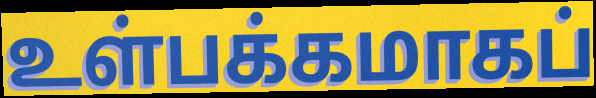
உள்பக்கமாகப்